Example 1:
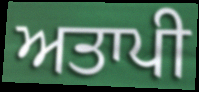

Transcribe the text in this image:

ਅਤਾਪੀ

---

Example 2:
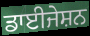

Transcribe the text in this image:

ਡਾਈਜੇਸ਼ਨ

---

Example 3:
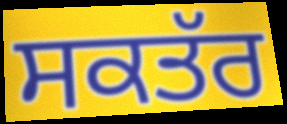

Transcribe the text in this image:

ਸਕਤੱਰ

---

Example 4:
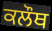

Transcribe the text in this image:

ਕਲੌਥ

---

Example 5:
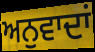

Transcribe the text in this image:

ਅਨੁਵਾਦਾਂ